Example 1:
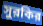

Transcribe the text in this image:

সুরকির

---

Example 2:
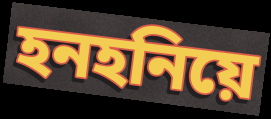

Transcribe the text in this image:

হনহনিয়ে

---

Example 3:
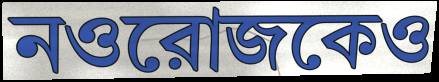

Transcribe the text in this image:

নওরোজকেও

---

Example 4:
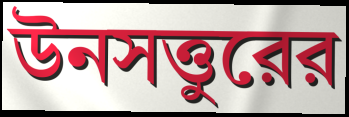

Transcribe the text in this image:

উনসত্তুরের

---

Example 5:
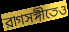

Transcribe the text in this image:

রাগসঙ্গীতেও